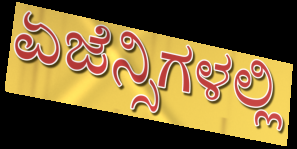
ಏಜೆನ್ಸಿಗಳಲ್ಲಿ